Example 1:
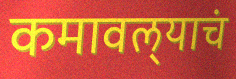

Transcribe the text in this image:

कमावल्याचं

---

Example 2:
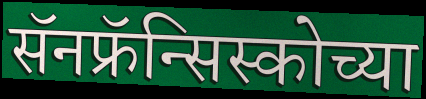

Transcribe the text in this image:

सॅनफ्रॅन्सिस्कोच्या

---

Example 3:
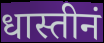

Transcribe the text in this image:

धास्तीनं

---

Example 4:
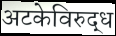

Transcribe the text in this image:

अटकेविरुद्ध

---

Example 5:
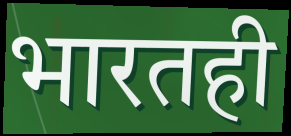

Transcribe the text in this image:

भारतही